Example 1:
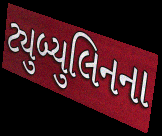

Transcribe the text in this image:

ટ્યુબ્યુલિનના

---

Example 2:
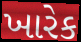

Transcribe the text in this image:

ખારેક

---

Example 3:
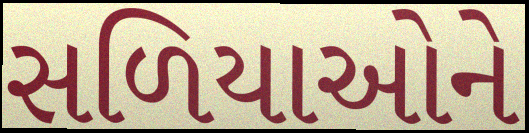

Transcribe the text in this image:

સળિયાઓને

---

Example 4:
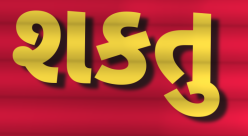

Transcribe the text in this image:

શકતુ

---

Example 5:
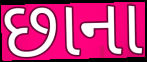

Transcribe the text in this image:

છાના